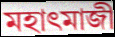
মহাৎমাজী